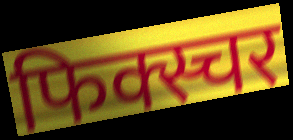
फिक्स्चर